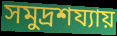
সমুদ্রশয্যায়